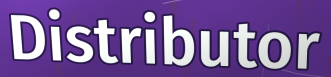
Distributor